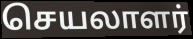
செயலாளர்